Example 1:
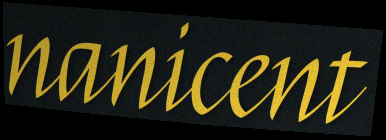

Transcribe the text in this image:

nanicent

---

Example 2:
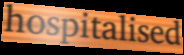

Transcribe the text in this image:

hospitalised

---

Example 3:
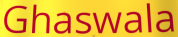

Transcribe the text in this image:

Ghaswala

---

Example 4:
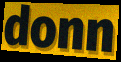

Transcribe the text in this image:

donn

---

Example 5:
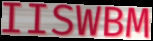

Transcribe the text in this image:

IISWBM